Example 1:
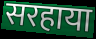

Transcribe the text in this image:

सरहाया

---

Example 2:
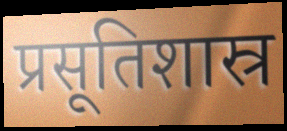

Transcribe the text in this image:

प्रसूतिशास्र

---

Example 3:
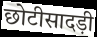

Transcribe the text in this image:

छोटीसादड़ी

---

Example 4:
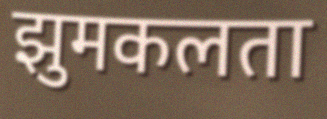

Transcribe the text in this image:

झुमकलता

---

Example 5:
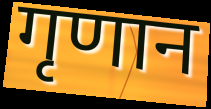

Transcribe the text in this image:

गृणान